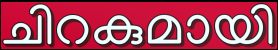
ചിറകുമായി